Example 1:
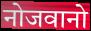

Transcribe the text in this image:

नोजवानो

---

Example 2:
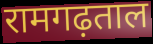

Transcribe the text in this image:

रामगढ़ताल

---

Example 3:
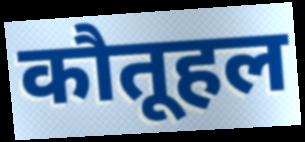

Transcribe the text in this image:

कौतूहल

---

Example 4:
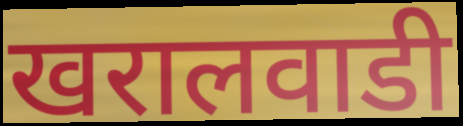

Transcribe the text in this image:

खरालवाडी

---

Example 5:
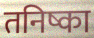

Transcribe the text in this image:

तनिष्का